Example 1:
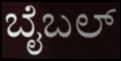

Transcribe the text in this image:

ಬೈಬಲ್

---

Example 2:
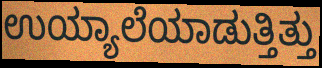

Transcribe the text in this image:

ಉಯ್ಯಾಲೆಯಾಡುತ್ತಿತ್ತು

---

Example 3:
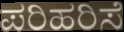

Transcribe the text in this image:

ಪರಿಹರಿಸೆ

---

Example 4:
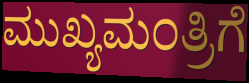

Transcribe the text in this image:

ಮುಖ್ಯಮಂತ್ರಿಗೆ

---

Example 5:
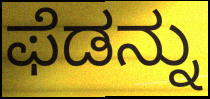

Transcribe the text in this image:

ಫೆಡನ್ನು